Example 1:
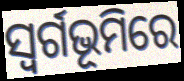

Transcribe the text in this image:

ସ୍ଵର୍ଗଭୂମିରେ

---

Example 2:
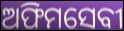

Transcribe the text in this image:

ଅଫିମସେବୀ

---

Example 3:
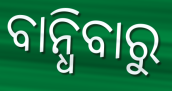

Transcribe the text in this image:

ବାନ୍ଧିବାରୁ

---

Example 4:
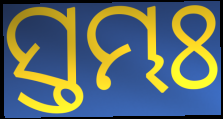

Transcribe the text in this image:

ସ୍ତମ୍ଭଃ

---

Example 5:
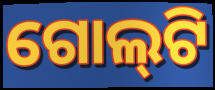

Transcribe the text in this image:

ଗୋଲ୍‍ଟି